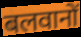
बलवानों